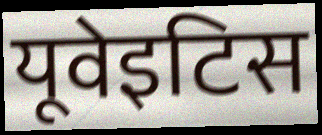
यूवेइटिस